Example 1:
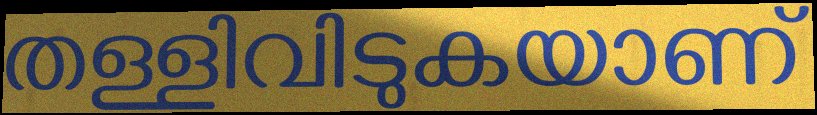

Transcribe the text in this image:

തള്ളിവിടുകയാണ്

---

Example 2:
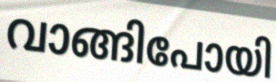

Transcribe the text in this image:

വാങ്ങിപോയി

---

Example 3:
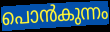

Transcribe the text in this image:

പൊൻകുന്നം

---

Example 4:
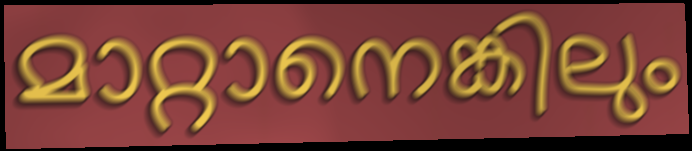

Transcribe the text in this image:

മാറ്റാനെങ്കിലും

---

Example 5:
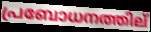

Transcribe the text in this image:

പ്രബോധനത്തില്